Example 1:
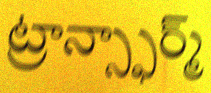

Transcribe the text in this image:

ట్రాన్స్ఫార్మ్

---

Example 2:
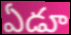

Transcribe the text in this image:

ఏడూ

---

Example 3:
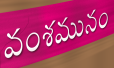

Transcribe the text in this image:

వంశమునం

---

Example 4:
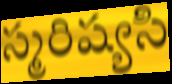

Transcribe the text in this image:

స్మరిష్యసి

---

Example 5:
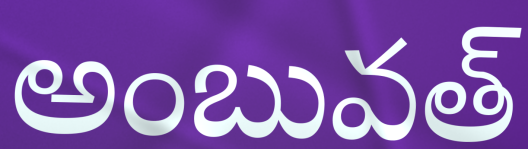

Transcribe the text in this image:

అంబువత్